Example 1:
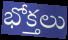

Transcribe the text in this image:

భోక్తలు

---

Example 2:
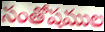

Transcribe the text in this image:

సంతోషముల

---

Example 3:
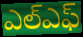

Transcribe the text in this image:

ఎల్ఎఫ్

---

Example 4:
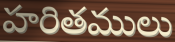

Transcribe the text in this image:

హరితములు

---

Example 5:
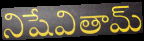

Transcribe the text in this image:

నిషేవితామ్